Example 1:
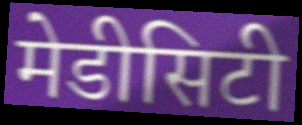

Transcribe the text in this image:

मेडीसिटी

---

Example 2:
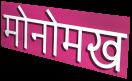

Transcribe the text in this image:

मोनोमख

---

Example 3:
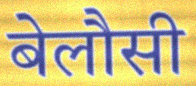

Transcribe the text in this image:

बेलौसी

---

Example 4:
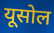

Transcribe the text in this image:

यूसोल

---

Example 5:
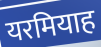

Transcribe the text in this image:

यरमियाह